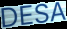
DESA